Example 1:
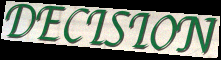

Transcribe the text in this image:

DECISION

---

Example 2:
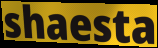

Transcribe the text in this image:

shaesta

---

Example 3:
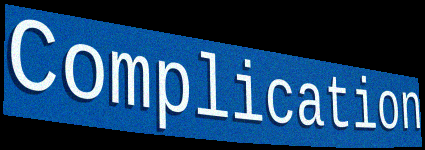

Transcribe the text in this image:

Complication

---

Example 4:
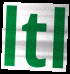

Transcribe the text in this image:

ltl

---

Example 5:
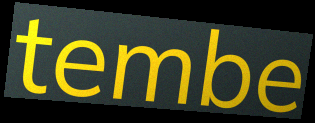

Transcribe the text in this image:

tembe